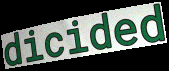
dicided